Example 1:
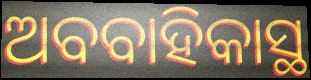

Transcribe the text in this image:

ଅବବାହିକାସ୍ଥ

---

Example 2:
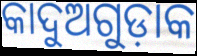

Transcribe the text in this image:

କାଦୁଅଗୁଡ଼ାକ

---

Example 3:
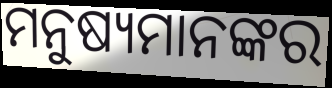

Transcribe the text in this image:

ମନୁଷ୍ୟମାନଙ୍କର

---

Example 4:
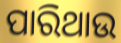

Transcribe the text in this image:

ପାରିଥାଉ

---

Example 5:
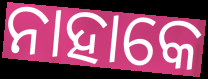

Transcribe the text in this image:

ନାହାକେ